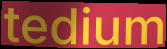
tedium